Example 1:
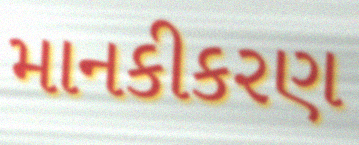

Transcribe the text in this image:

માનકીકરણ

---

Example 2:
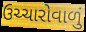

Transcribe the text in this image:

ઉચ્ચારોવાળું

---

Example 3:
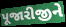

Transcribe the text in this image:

પૂજારીજીને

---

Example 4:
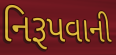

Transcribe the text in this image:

નિરૂપવાની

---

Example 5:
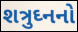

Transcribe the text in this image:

શત્રુઘ્નનો